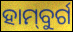
ହାମ୍‌ବୁର୍ଗ